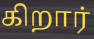
கிறார்